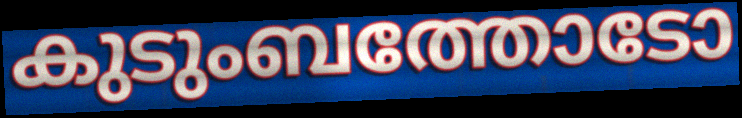
കുടുംബത്തോടോ